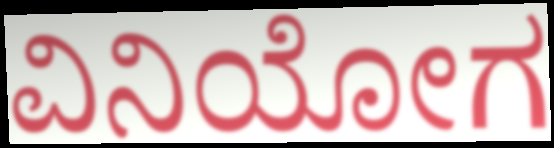
ವಿನಿಯೋಗ